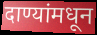
दाण्यांमधून